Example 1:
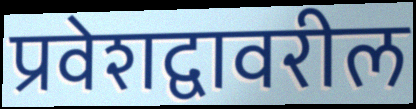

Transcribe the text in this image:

प्रवेशद्वावरील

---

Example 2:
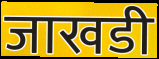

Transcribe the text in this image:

जाखडी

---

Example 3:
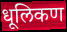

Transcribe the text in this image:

धूलिकण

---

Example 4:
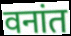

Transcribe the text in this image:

वनांत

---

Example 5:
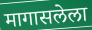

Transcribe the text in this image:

मागासलेला